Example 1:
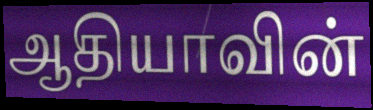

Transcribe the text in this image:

ஆதியாவின்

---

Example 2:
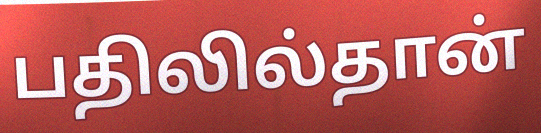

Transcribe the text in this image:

பதிலில்தான்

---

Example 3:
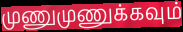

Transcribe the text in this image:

முணுமுணுக்கவும்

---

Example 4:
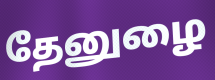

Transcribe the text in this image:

தேனுழை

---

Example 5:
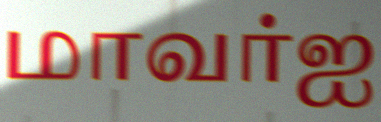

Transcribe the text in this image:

மாவர்ஐ